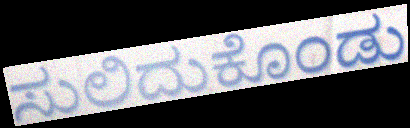
ಸುಲಿದುಕೊಂಡು